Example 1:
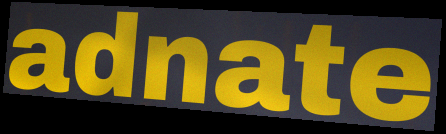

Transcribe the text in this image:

adnate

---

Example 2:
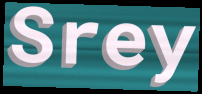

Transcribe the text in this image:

Srey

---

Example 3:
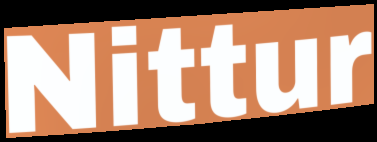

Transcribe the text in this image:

Nittur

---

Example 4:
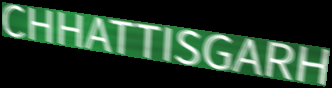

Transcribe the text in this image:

CHHATTISGARH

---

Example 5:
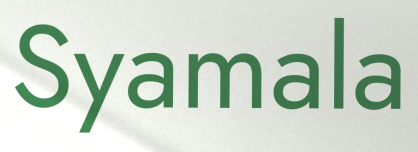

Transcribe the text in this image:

Syamala